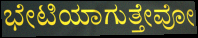
ಭೇಟಿಯಾಗುತ್ತೇವೋ